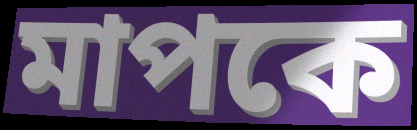
মাপকে